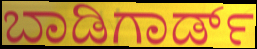
ಬಾಡಿಗಾರ್ಡ್